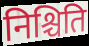
निश्चिति